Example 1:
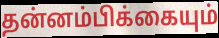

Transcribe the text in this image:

தன்னம்பிக்கையும்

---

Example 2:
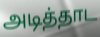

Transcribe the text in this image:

அடித்தாட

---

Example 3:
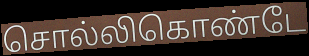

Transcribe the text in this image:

சொல்லிகொண்டே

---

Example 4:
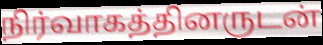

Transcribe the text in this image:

நிர்வாகத்தினருடன்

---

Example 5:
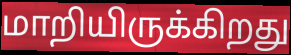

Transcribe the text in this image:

மாறியிருக்கிறது